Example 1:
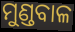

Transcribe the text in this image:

ମୁଣ୍ଡବାଳ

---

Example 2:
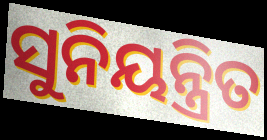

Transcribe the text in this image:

ସୁନିୟନ୍ତ୍ରିତ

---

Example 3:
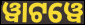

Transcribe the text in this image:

ୱାଟୱେ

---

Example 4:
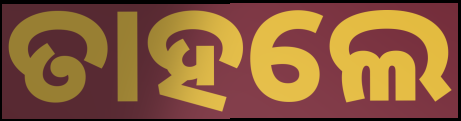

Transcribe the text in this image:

ତାହଲେ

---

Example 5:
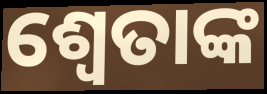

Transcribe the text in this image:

ଶ୍ୱେତାଙ୍କ